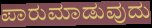
ಪಾರುಮಾಡುವುದು